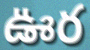
ఊర